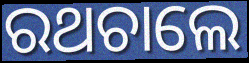
ରଥଚାଲେ